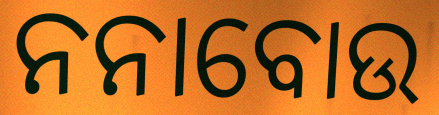
ନନାବୋଉ